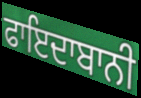
ਫਾਇਦਾਬਾਨੀ